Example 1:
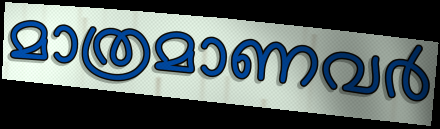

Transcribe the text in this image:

മാത്രമാണവർ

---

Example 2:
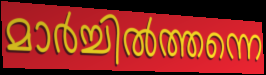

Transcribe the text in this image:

മാർച്ചിൽത്തന്നെ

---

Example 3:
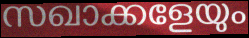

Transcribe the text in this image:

സഖാക്കളേയും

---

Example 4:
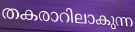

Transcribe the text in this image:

തകരാറിലാകുന്ന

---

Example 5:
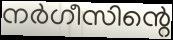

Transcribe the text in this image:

നർഗീസിന്റെ